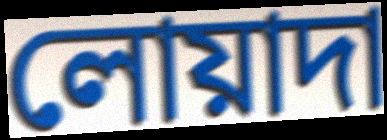
লোয়াদা